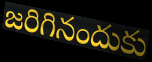
జరిగినందుకు